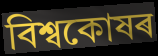
বিশ্বকোষৰ